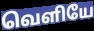
வெளியே